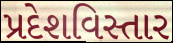
પ્રદેશવિસ્તાર